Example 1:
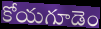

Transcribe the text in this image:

కోయగూడెం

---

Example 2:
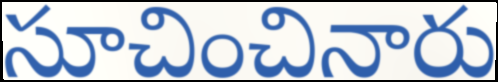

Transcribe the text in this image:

సూచించినారు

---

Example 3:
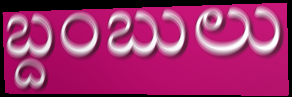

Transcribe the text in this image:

బ్దంబులు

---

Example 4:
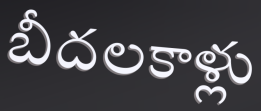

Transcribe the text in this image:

బీదలకాళ్లు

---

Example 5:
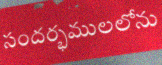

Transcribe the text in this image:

సందర్భములలోను